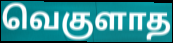
வெகுளாத